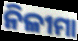
ନିଳୀମା